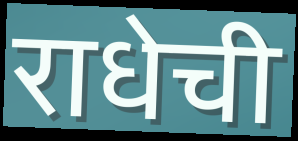
राधेची